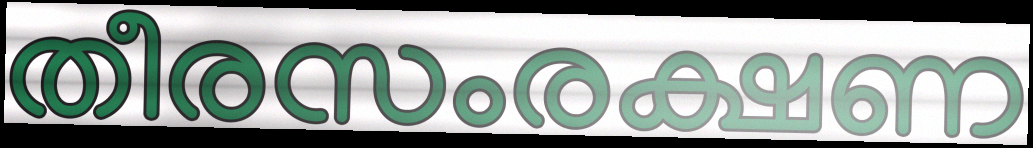
തീരസംരക്ഷണ